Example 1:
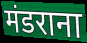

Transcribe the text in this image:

मंडराना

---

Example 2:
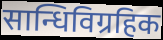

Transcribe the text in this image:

सान्धिविग्रहिक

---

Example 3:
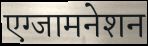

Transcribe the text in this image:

एग्जामनेशन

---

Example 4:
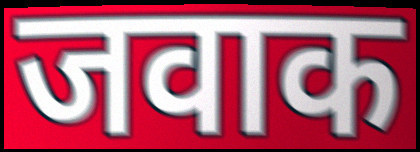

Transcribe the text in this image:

जवाक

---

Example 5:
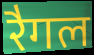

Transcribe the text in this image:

रैगल